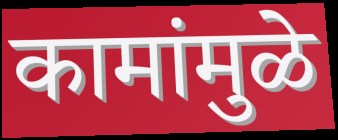
कामांमुळे